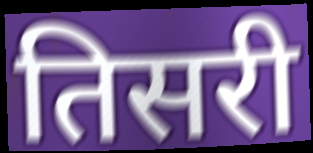
तिसरी